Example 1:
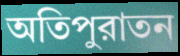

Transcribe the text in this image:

অতিপুরাতন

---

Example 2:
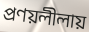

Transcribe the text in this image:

প্রণয়লীলায়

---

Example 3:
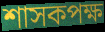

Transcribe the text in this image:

শাসকপক্ষ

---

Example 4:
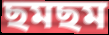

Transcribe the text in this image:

ছমছম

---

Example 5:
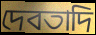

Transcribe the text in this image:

দেবতাদি